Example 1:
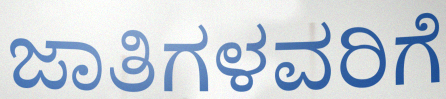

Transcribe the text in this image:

ಜಾತಿಗಳವರಿಗೆ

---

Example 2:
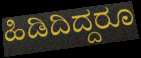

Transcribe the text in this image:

ಹಿಡಿದಿದ್ದರೂ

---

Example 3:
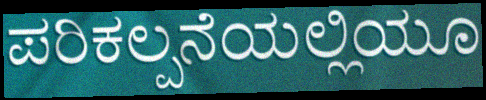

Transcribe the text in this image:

ಪರಿಕಲ್ಪನೆಯಲ್ಲಿಯೂ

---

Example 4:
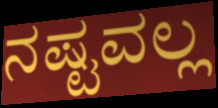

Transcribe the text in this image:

ನಷ್ಟವಲ್ಲ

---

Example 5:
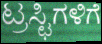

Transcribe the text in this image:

ಟ್ರಸ್ಟಿಗಳಿಗೆ